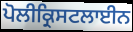
ਪੋਲੀਕ੍ਰਿਸਟਲਾਈਨ